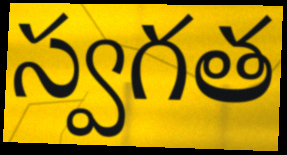
స్వగత